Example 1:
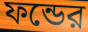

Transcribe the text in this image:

ফন্ডের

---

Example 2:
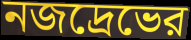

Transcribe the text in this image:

নজদ্রেভের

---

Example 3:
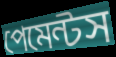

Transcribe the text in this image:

পেমেন্টস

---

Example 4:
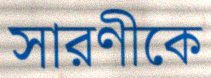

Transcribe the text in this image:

সারণীকে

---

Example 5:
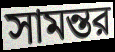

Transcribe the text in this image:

সামন্তর